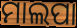
ମାଲପା